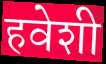
हवेशी